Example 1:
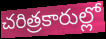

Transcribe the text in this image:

చరిత్రకారుల్లో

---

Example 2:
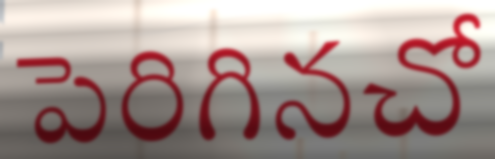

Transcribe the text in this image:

పెరిగినచో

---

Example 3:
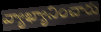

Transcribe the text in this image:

వ్యాఖ్యానించారు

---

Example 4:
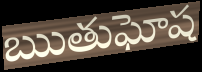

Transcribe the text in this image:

ఋతుఘోష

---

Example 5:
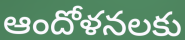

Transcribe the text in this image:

ఆందోళనలకు